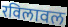
रविलावल